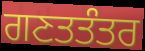
ਗਣਤਤੰਤਰ